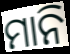
ମାନି